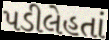
પડીલેહતાં